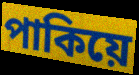
পাকিয়ে